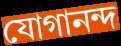
যোগানন্দ